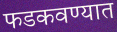
फडकवण्यात